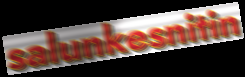
salunkesnitin